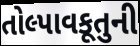
તોલ્પાવકૂતુની